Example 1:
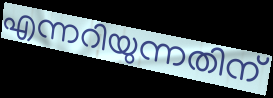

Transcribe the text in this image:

എന്നറിയുന്നതിന്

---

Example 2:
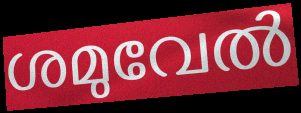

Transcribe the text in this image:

ശമുവേൽ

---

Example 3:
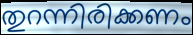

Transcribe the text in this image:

തുറന്നിരിക്കണം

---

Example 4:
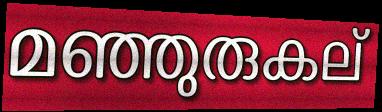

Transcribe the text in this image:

മഞ്ഞുരുകല്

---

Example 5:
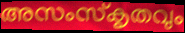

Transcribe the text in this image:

അസംസ്കൃതവും